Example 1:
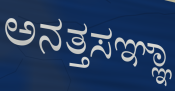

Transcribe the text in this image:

ಅನತ್ತಸಞ್ಞಾ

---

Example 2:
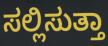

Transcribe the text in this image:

ಸಲ್ಲಿಸುತ್ತಾ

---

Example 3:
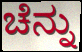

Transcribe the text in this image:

ಚೆನ್ನು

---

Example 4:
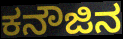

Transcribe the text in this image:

ಕನೌಜಿನ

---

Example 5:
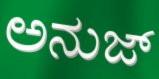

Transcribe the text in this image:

ಅನುಜ್